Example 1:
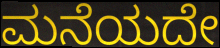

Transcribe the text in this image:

ಮನೆಯದೇ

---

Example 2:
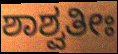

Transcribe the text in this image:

ಶಾಶ್ವತೀಃ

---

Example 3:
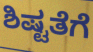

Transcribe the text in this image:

ಶಿಷ್ಟತೆಗೆ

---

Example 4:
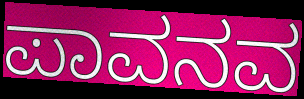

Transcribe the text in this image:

ಪಾವನವ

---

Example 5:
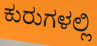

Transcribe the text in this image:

ಕುರುಗಳಲ್ಲಿ